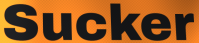
Sucker